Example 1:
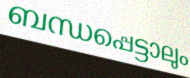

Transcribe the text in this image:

ബന്ധപ്പെട്ടാലും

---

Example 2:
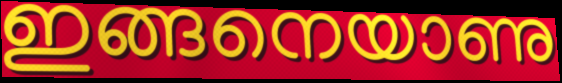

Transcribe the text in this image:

ഇങ്ങനെയാണു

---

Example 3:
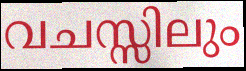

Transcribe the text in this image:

വചസ്സിലും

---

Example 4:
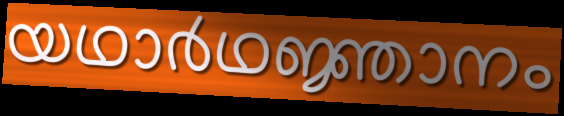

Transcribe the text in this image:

യഥാർഥജ്ഞാനം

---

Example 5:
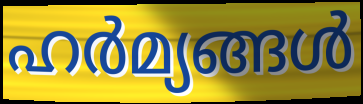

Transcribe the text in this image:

ഹർമ്യങ്ങൾ